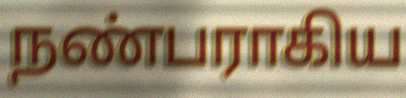
நண்பராகிய